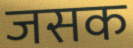
जसक